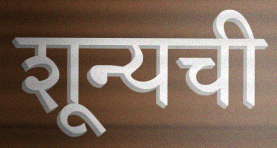
शून्यची